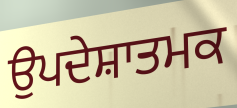
ਉਪਦੇਸ਼ਾਤਮਕ